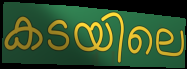
കടയിലെ